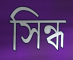
সিন্ধ